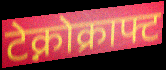
टेक्नोक्राफ्ट